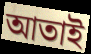
আতাই